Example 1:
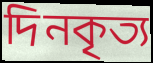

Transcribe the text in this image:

দিনকৃত্য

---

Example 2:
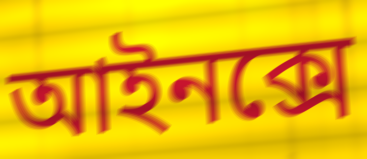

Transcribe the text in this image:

আইনক্সে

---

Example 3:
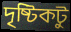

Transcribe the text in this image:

দৃষ্টিকটু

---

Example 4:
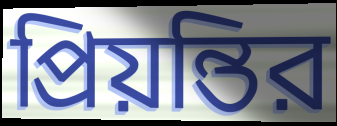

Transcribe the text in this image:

প্রিয়ন্তির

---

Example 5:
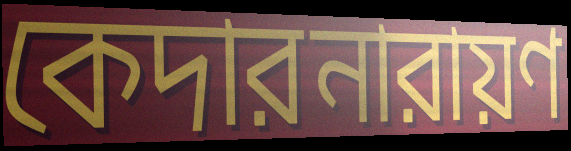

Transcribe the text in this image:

কেদারনারায়ণ